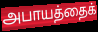
அபாயத்தைக்